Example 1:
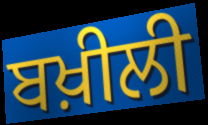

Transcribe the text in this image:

ਬਖ਼ੀਲੀ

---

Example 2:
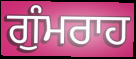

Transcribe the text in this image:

ਗੁੰਮਰਾਹ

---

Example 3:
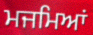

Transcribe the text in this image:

ਮਜਮਿਆਂ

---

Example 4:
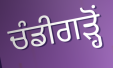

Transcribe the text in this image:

ਚੰਡੀਗੜ੍ਹੋਂ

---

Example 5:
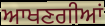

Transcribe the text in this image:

ਆਖਣਗੀਆਂ